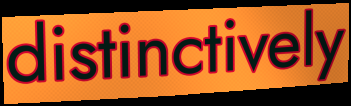
distinctively